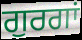
ਗੁਰਗਾਂ